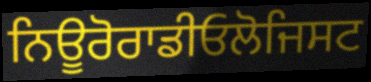
ਨਿਊਰੋਰਾਡੀਓਲੋਜਿਸਟ